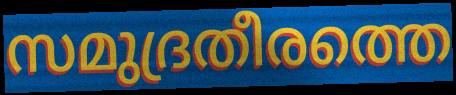
സമുദ്രതീരത്തെ